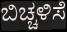
ಬಿಚ್ಚಳಿಸೆ